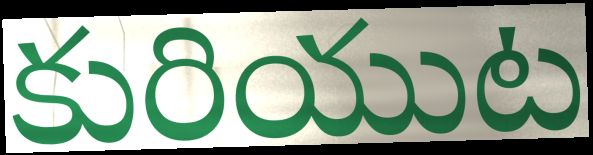
కురియుట